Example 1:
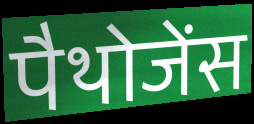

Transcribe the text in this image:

पैथोजेंस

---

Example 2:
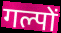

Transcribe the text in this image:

गल्पों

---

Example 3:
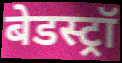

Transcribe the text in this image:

बेडस्ट्रॉ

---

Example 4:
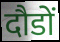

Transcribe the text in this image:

दौडों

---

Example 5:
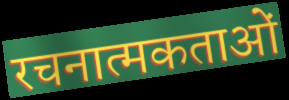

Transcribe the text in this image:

रचनात्मकताओं